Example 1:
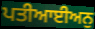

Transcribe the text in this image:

ਪਤੀਆਈਅਨੁ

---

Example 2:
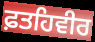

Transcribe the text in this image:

ਫ਼ਤਹਿਵੀਰ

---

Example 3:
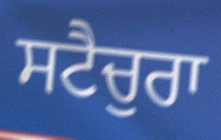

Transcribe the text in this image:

ਸਟੈਚੁਰਾ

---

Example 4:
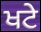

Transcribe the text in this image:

ਖਟੇ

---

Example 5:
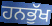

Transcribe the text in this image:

ਹਨਭੁੱਖ